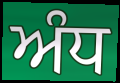
ਅੰਧ